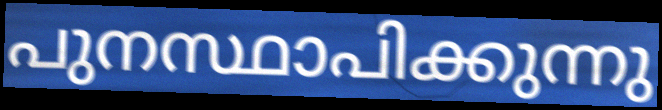
പുനസ്ഥാപിക്കുന്നു